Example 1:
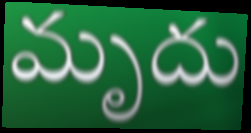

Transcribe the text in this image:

మృదు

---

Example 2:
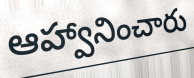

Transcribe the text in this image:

ఆహ్వానించారు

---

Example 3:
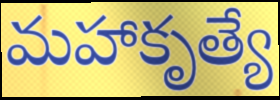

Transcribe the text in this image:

మహాకృత్యే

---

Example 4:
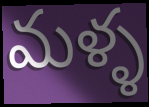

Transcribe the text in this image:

మళ్ళ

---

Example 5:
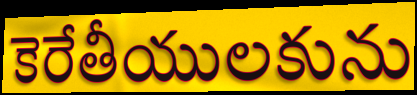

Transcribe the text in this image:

కెరేతీయులకును